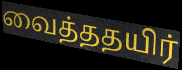
வைத்ததயிர்